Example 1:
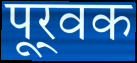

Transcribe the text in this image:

पूर्वक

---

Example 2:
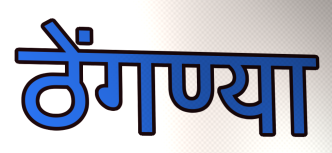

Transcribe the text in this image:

ठेंगण्या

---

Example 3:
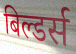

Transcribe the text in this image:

बिल्डर्स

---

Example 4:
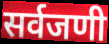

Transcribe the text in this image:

सर्वजणी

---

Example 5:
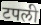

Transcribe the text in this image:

टपली